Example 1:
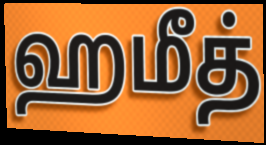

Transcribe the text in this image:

ஹமீத்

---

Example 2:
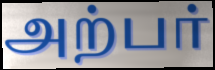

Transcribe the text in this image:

அற்பர்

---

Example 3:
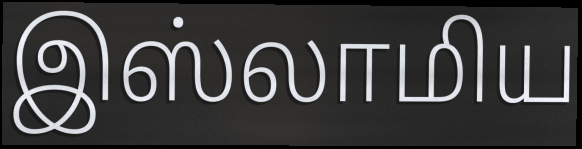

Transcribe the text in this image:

இஸ்லாமிய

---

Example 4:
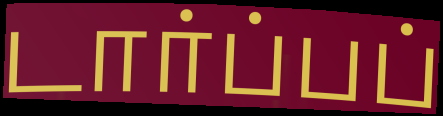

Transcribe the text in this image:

டார்ப்பப்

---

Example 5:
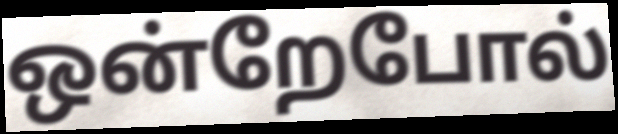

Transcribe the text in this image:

ஒன்றேபோல்